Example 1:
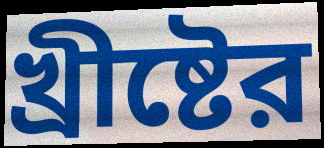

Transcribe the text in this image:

খ্রীষ্টের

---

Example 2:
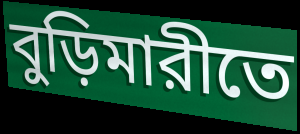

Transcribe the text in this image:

বুড়িমারীতে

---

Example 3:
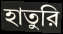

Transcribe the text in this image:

হাতুরি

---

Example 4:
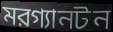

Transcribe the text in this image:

মরগ্যানটন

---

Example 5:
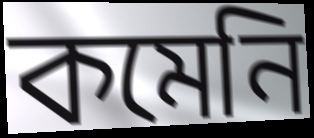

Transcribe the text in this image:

কমেনি